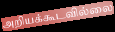
அறியக்கூடவில்லை